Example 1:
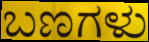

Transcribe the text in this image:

ಬಣಗಳು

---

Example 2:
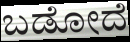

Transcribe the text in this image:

ಬಡೋದೆ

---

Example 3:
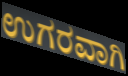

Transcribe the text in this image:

ಉಗರವಾಗಿ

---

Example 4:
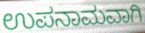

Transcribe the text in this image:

ಉಪನಾಮವಾಗಿ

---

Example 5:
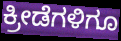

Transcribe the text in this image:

ಕ್ರೀಡೆಗಳಿಗೂ